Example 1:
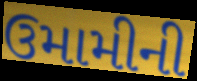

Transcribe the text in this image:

ઉમામીની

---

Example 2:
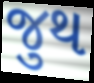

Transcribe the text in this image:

જુથ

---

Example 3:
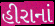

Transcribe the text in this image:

હીરાનાં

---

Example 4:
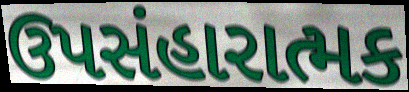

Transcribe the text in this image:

ઉપસંહારાત્મક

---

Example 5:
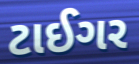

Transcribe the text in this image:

ટાઈગર